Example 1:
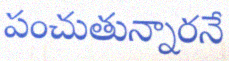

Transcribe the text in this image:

పంచుతున్నారనే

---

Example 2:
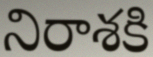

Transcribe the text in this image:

నిరాశకి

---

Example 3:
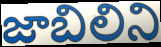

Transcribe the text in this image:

జాబిలిని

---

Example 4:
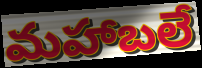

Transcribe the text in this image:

మహాబలే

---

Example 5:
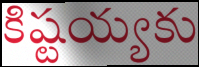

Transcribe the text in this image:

కిష్టయ్యకు